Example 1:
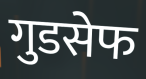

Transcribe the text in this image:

गुडसेफ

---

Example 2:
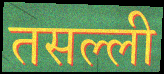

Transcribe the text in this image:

तसल्‍ली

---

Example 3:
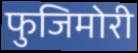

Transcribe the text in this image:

फुजिमोरी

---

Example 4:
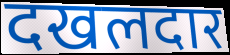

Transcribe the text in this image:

दखलदार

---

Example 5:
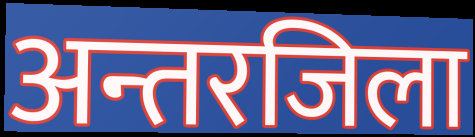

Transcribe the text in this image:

अन्तरजिला